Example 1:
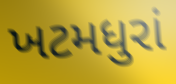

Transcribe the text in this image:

ખટમધુરાં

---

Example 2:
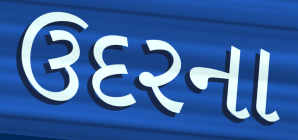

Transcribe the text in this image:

ઉદરના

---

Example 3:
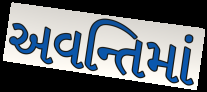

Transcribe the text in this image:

અવન્તિમાં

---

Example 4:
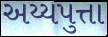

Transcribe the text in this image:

અય્યપુત્તા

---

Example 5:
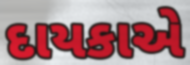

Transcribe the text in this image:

દાયકાએ